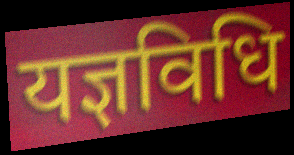
यज्ञविधि